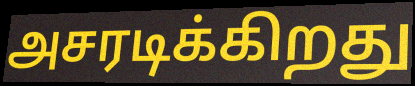
அசரடிக்கிறது